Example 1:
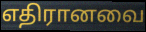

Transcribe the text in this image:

எதிரானவை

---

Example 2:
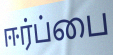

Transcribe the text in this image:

ஈர்ப்பை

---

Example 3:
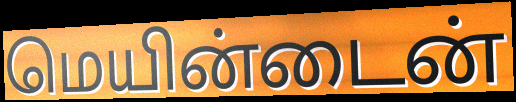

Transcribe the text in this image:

மெயின்டைன்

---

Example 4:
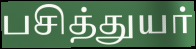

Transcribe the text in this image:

பசித்துயர்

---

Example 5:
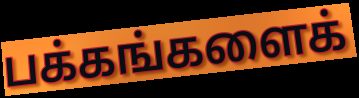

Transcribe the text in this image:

பக்கங்களைக்